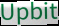
Upbit